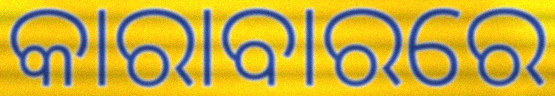
କାରାବାରରେ